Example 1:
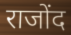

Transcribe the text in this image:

राजोंद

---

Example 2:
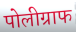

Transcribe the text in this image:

पोलीग्राफ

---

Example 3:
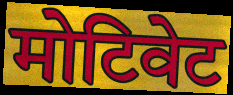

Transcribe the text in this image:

मोटिवेट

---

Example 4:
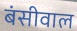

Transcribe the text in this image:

बंसीवाल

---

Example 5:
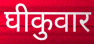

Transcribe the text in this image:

घीकुवार